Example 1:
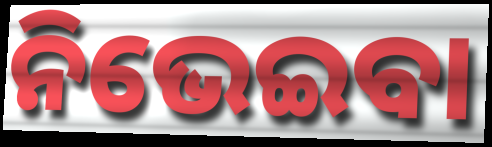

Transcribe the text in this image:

ନିଭେଇବା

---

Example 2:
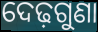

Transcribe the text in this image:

ଦେଢ଼ଗୁଣା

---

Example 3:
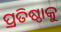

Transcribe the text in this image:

ପ୍ରତିଷ୍ଠାକୁ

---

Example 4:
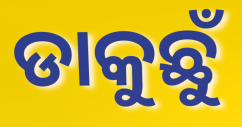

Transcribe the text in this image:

ଡାକୁଛୁଁ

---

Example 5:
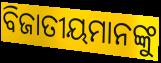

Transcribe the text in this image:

ବିଜାତୀୟମାନଙ୍କୁ